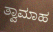
ತ್ವಾಮಾಹ